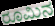
ರೂಮಿನ